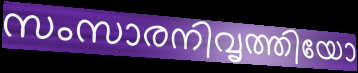
സംസാരനിവൃത്തിയോ